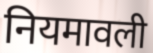
नियमावली